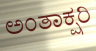
ಅಂತಾಕ್ಷರಿ